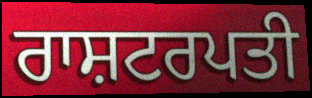
ਰਾਸ਼ਟਰਪਤੀ